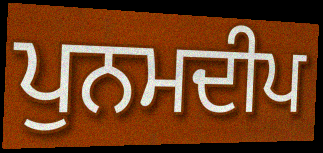
ਪੁਨਮਦੀਪ